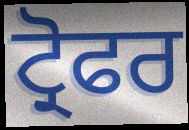
ਟ੍ਰੋਫਰ